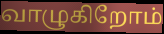
வாழுகிறோம்